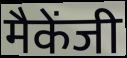
मैकेंजी